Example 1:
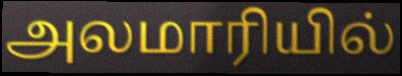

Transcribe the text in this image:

அலமாரியில்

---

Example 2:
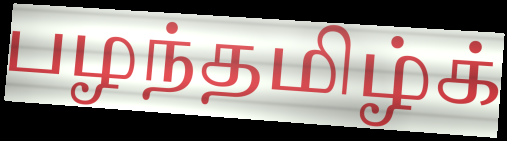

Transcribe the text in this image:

பழந்தமிழ்க்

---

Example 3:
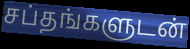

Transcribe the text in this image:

சப்தங்களுடன்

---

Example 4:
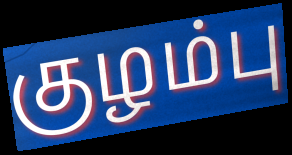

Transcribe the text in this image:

குழம்பு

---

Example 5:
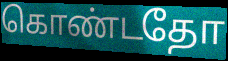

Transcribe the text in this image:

கொண்டதோ